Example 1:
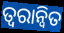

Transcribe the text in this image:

ତ୍ଵରାନ୍ବିତ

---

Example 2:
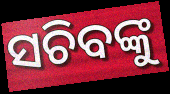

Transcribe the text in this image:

ସଚିବଙ୍କୁ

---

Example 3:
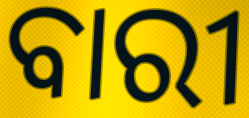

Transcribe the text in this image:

ବାରୀ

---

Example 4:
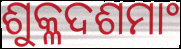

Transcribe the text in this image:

ଶୁକ୍ଳଦଶମାଂ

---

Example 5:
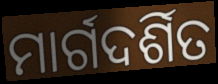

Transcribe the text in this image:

ମାର୍ଗଦର୍ଶିତ